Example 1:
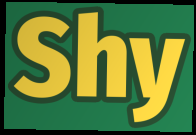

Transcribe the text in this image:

Shy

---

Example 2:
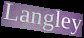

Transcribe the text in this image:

Langley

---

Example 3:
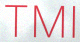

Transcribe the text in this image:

TMI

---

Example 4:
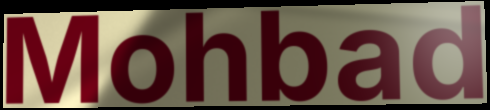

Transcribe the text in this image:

Mohbad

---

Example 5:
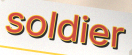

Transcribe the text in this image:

soldier